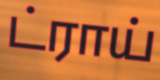
ட்ராய்